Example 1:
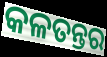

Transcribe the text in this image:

କଳତନ୍ତର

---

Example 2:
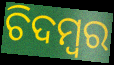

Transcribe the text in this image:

ଚିଦମ୍ବର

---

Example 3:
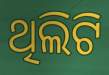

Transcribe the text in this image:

ଥିଲିଟି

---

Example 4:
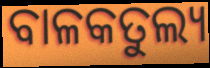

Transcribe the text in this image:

ବାଳକତୁଲ୍ୟ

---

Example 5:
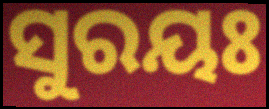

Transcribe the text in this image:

ସୁରୟଃ